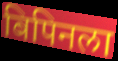
बिपिनला